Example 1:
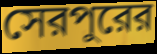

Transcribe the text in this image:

সেরপুরের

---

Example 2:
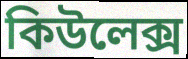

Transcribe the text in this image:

কিউলেক্স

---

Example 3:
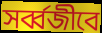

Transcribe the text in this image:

সর্ব্বজীবে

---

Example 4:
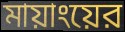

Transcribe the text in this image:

মায়াংয়ের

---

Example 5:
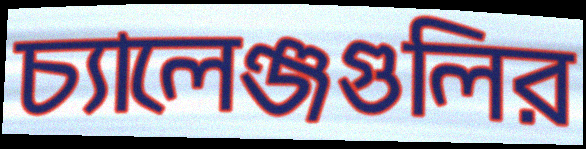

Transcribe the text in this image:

চ্যালেঞ্জগুলির